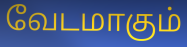
வேடமாகும்